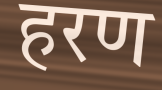
हरण